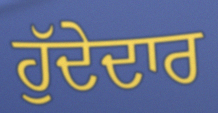
ਹੁੱਦੇਦਾਰ